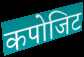
कपोजिट